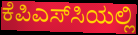
ಕೆಪಿಎಸ್‌ಸಿಯಲ್ಲಿ